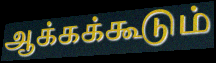
ஆக்கக்கூடும்